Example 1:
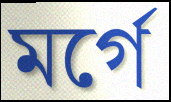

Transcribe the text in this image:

মর্গে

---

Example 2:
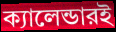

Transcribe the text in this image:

ক্যালেন্ডারই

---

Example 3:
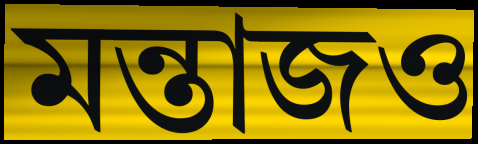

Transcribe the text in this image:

মন্তাজও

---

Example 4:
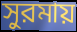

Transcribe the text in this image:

সুরমায়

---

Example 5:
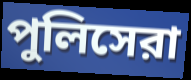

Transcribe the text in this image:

পুলিসেরা